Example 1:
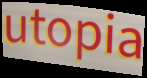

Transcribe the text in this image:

utopia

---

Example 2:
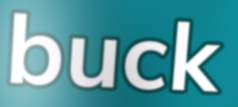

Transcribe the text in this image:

buck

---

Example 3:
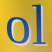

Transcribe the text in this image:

ol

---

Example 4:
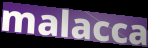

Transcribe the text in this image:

malacca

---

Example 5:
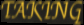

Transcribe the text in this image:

TAKING